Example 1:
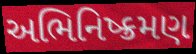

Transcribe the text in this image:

અભિનિષ્ક્રમણ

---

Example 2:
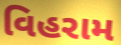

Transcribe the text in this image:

વિહરામ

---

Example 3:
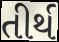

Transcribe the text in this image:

તીર્થ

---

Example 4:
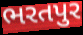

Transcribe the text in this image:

ભરતપુર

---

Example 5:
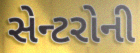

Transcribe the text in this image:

સેન્ટરોની